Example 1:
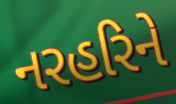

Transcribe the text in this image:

નરહરિને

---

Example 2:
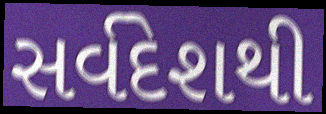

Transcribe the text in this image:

સર્વદેશથી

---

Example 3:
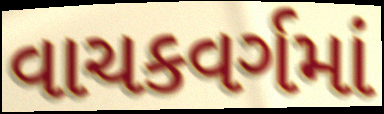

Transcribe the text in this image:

વાચકવર્ગમાં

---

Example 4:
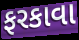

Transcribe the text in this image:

ફરકાવા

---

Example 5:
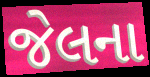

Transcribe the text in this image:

જેલના